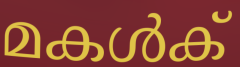
മകൾക്